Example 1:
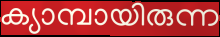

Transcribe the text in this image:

ക്യാമ്പായിരുന്ന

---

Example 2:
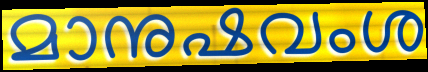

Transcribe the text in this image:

മാനുഷവംശ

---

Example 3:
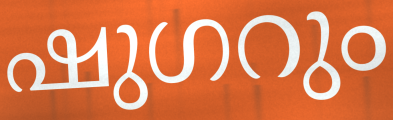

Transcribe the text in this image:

ഷുഗറും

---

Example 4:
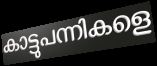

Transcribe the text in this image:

കാട്ടുപന്നികളെ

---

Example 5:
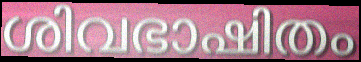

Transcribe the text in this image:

ശിവഭാഷിതം